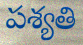
పశ్యతి